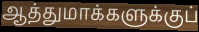
ஆத்துமாக்களுக்குப்